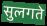
सुलगते